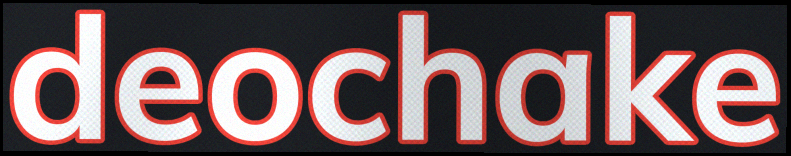
deochake